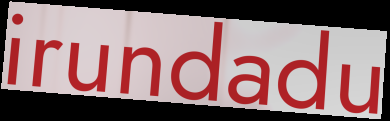
irundadu